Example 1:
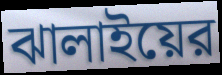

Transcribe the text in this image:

ঝালাইয়ের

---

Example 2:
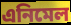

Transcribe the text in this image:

এনিমেল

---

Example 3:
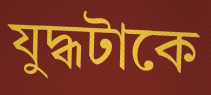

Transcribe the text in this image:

যুদ্ধটাকে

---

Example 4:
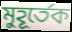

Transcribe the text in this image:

মুহূর্তেক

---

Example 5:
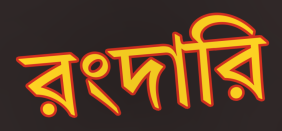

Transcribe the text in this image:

রংদারি